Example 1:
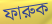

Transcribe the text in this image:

ফারুক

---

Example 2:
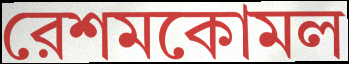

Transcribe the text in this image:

রেশমকোমল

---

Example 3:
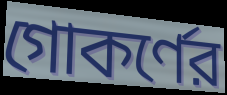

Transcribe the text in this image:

গোকর্ণের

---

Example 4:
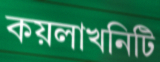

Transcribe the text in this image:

কয়লাখনিটি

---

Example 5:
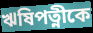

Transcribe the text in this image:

ঋষিপত্নীকে